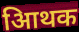
आिथक